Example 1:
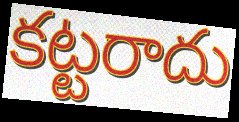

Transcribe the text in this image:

కట్టరాదు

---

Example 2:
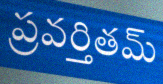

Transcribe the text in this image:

ప్రవర్తితమ్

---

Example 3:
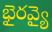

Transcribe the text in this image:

భైరవ్యై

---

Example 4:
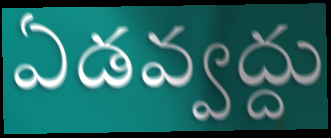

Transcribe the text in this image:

ఏడవ్వద్దు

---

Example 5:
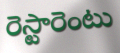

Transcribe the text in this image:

రెస్టారెంటు